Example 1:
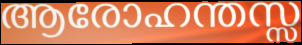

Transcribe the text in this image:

ആരോഹന്തസ്സ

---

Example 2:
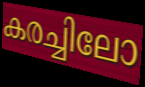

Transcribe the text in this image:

കരച്ചിലോ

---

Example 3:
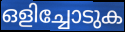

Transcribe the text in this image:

ഒളിച്ചോടുക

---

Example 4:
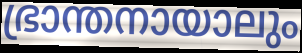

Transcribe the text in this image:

ഭ്രാന്തനായാലും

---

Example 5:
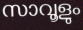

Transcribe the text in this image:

സാവൂളും